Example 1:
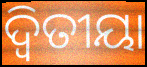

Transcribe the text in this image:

ଦ୍ବିତୀୟା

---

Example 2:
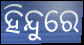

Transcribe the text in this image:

ହିନ୍ଦୁରେ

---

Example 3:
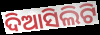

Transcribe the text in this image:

ଦିଆସିଲିଟି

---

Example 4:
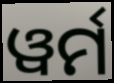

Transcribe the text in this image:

ୱର୍ମ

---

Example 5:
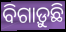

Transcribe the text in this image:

ବିଗାଡ଼ୁଛି